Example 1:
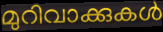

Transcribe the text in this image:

മുറിവാക്കുകൾ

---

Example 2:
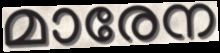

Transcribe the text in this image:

മാരേന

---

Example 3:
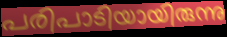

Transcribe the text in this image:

പരിപാടിയായിരുന്നു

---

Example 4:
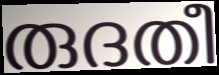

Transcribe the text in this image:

രുദതീ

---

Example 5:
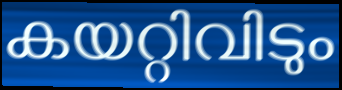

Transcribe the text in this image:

കയറ്റിവിടും